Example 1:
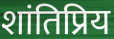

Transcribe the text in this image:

शांतिप्रिय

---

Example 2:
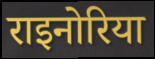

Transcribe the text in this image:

राइनोरिया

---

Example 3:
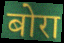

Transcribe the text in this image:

बोरा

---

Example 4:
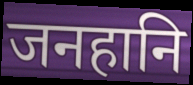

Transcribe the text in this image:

जनहानि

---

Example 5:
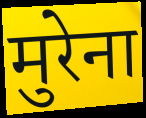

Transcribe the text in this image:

मुरेना